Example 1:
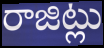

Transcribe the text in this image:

రాజిట్లు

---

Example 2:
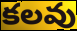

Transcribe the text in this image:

కలవు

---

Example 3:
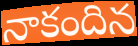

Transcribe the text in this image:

నాకందిన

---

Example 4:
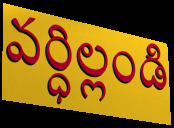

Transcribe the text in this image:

వర్ధిల్లండి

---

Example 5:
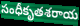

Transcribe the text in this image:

సంధీకృతశరాయ